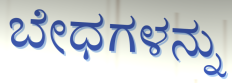
ಬೇಧಗಳನ್ನು